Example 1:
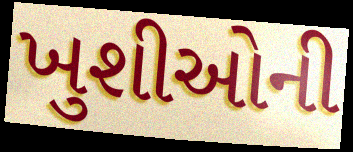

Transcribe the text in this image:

ખુશીઓની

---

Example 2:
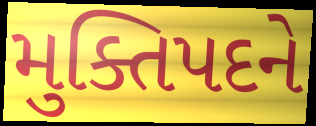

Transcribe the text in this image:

મુક્તિપદને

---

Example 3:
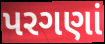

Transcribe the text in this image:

પરગણાં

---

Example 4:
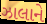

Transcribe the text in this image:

ઝાલાને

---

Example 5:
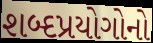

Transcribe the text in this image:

શબ્દપ્રયોગોનો